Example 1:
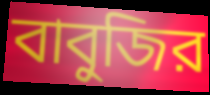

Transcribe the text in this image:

বাবুজির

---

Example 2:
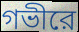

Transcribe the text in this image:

গভীরে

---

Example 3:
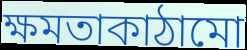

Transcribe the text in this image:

ক্ষমতাকাঠামো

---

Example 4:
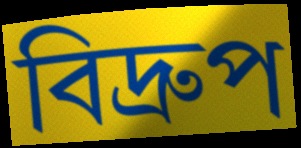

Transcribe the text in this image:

বিদ্রুপ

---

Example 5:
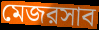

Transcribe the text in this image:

মেজরসাব